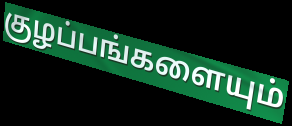
குழப்பங்களையும்